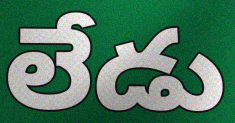
లేడు